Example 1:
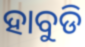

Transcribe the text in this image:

ହାବୁଡି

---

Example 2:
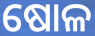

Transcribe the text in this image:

ଷୋଳ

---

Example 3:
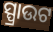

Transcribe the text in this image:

ସ୍ପ୍ରାଉଟ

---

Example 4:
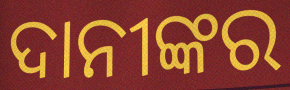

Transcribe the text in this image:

ଦାନୀଙ୍କର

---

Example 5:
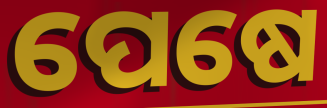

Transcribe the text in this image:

ପେଷେ